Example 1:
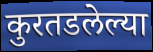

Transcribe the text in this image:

कुरतडलेल्या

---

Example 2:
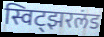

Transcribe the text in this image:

स्विट्झरलंड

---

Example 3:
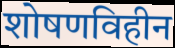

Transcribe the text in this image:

शोषणविहीन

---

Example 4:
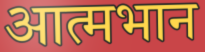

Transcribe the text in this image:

आत्मभान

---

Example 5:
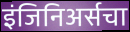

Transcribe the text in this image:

इंजिनिअर्सचा